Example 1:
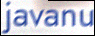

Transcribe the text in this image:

javanu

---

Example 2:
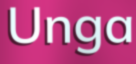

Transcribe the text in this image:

Unga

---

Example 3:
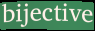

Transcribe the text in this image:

bijective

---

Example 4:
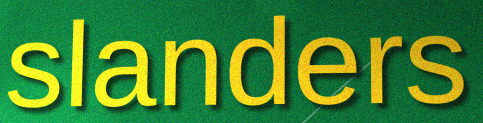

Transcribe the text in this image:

slanders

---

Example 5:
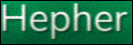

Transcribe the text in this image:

Hepher